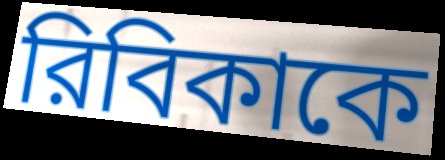
রিবিকাকে